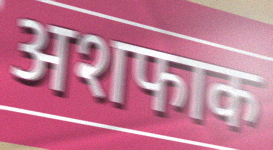
अशफाक